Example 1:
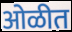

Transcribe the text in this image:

ओळीत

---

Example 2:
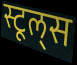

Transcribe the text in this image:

स्टूल्स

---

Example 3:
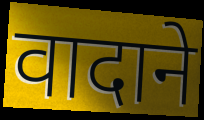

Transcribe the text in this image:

वादाने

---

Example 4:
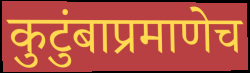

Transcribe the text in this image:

कुटुंबाप्रमाणेच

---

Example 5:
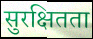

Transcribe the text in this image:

सुरक्षितता